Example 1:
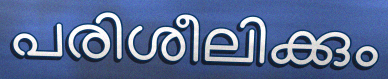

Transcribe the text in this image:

പരിശീലിക്കും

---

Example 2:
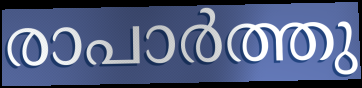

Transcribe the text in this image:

രാപാർത്തു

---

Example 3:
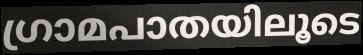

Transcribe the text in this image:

ഗ്രാമപാതയിലൂടെ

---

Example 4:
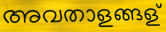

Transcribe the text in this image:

അവതാളങ്ങള്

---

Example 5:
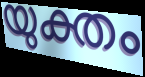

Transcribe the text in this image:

യുക്തം